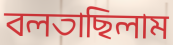
বলতাছিলাম